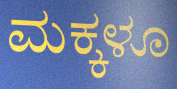
ಮಕ್ಕಳೂ